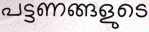
പട്ടണങ്ങളുടെ